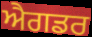
ਐਗਡਰ